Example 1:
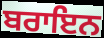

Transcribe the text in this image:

ਬਰਾਇਨ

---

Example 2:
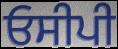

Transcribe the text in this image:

ਓਸੀਪੀ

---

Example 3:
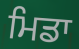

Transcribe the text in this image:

ਮਿਡਾ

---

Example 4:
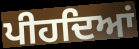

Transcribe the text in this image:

ਪੀਹਦਿਆਂ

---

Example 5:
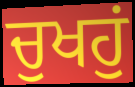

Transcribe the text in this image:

ਚੁਖਹੁਂ